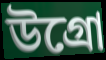
উগ্রো